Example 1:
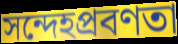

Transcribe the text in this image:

সন্দেহপ্রবণতা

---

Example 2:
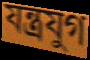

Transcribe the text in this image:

যন্ত্রযুগ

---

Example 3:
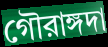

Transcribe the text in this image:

গৌরাঙ্গদা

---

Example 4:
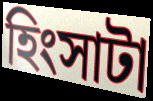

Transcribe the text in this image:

হিংসাটা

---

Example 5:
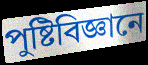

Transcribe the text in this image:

পুষ্টিবিজ্ঞানে